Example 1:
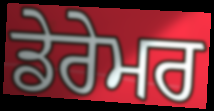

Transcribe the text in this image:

ਡੇਰੇਮਰ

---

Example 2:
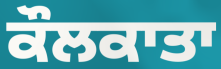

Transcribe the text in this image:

ਕੌਲਕਾਤਾ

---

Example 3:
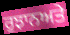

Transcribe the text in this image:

ਰੁਝਾਨਅਤੇ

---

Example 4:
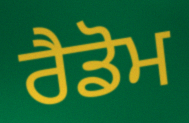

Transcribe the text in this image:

ਰੈਡੋਮ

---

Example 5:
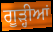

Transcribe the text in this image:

ਗੂੜ੍ਹੀਆਂ